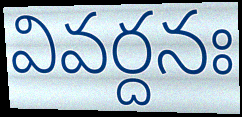
వివర్దనః